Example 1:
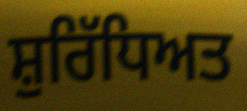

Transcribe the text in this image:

ਸ਼ੁਰਿੱਧਿਅਤ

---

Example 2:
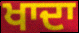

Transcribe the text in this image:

ਖਾਦਾ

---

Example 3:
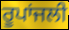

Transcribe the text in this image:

ਰੂਪਾਂਜਲੀ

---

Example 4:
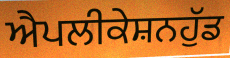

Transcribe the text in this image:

ਐਪਲੀਕੇਸ਼ਨਹੁੱਡ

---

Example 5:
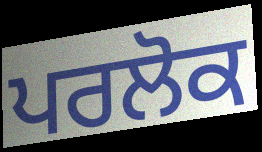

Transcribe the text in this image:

ਪਰਲੋਕ